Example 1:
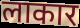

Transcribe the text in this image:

लाकार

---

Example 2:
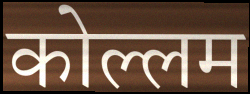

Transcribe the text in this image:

कोल्लम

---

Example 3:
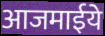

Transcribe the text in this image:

आजमाईये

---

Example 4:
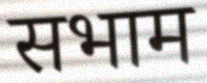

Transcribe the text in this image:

सभाम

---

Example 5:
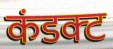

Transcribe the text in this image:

कंडक्‍ट